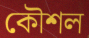
কৌশল